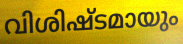
വിശിഷ്ടമായും